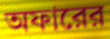
অফারের